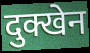
दुक्खेन